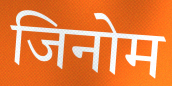
जिनोम